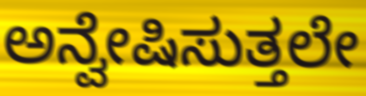
ಅನ್ವೇಷಿಸುತ್ತಲೇ